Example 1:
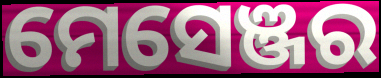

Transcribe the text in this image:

ମେସେଞ୍ଜର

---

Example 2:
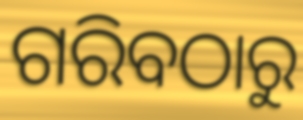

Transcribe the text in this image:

ଗରିବଠାରୁ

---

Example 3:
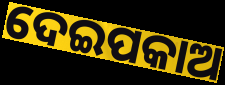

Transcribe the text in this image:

ଦେଇପକାଅ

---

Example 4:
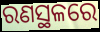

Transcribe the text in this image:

ରଣସ୍ଥଳରେ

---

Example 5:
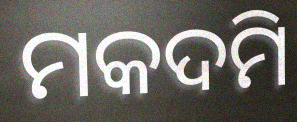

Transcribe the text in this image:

ମକଦମି